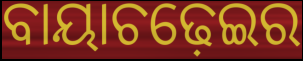
ବାୟାଚଢ଼େଇର